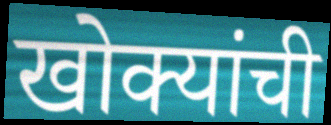
खोक्यांची